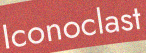
Iconoclast